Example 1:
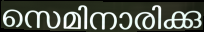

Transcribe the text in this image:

സെമിനാരിക്കു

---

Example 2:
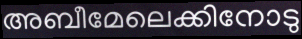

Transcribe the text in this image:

അബീമേലെക്കിനോടു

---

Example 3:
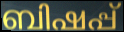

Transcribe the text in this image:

ബിഷപ്പ്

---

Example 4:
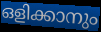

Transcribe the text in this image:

ഒളിക്കാനും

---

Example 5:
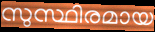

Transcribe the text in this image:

സുസ്ഥിരമായ